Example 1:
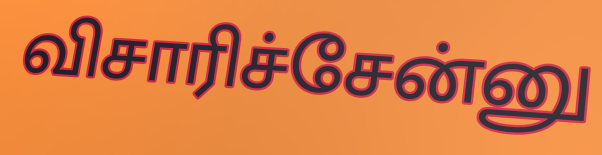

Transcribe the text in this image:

விசாரிச்சேன்னு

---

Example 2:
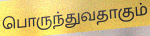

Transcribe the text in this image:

பொருந்துவதாகும்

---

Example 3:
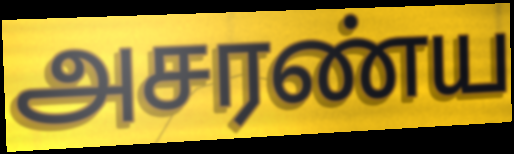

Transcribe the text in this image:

அசரண்ய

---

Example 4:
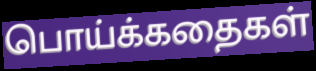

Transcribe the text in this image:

பொய்க்கதைகள்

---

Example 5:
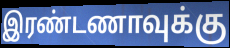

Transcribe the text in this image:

இரண்டணாவுக்கு